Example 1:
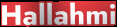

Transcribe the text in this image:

Hallahmi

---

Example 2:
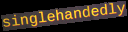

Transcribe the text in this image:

singlehandedly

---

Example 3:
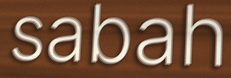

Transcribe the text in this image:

sabah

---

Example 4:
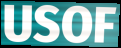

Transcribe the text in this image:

USOF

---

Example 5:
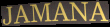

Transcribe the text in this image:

JAMANA